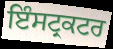
ਇੰਸਟ੍ਰਕਟਰ